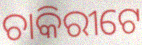
ଚାକିରୀଟେ